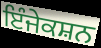
ਇੰਜੇਕਸ਼ਨ